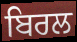
ਬਿਰਲ